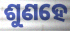
ଶୁଣହେ